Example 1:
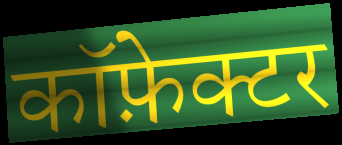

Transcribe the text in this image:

कॉफ़ेक्टर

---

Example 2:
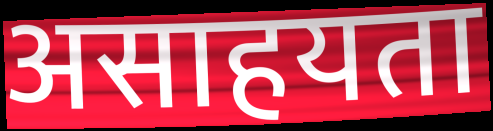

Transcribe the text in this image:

असाहयता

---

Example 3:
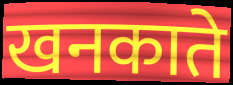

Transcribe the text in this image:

खनकाते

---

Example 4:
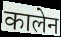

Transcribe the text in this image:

कालेन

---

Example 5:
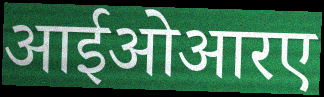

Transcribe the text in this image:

आईओआरए